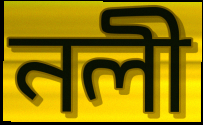
নলী